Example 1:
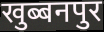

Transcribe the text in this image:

खुब्बनपुर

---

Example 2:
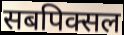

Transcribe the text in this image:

सबपिक्सल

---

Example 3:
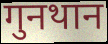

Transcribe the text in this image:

गुनथान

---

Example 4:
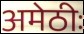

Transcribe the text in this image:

अमेठीः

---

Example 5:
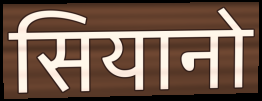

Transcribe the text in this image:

सियानो